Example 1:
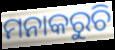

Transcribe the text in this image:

ମନାକରୁଚି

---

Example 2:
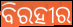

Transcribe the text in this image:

ବିରହୀର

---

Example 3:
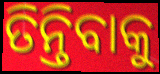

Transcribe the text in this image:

ତିନ୍ତିବାକୁ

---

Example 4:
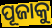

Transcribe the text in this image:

ପୂଜାକୁ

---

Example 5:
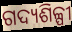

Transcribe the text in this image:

ଗଦ୍ୟଶିଳ୍ପୀ